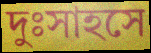
দুঃসাহসে